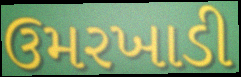
ઉમરખાડી